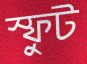
স্ফুট